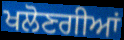
ਖਲੋਣਗੀਆਂ